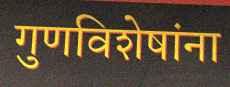
गुणविशेषांना